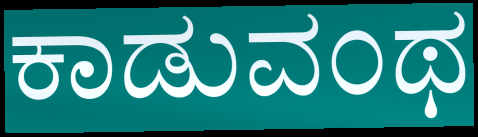
ಕಾಡುವಂಥ